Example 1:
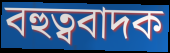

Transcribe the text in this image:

বহুত্ববাদক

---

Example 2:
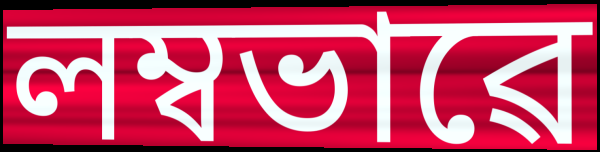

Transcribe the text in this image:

লম্বভাৱে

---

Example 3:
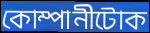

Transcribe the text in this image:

কোম্পানীটোক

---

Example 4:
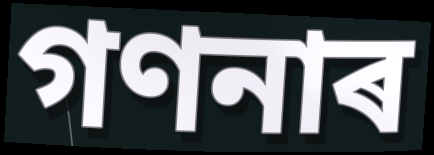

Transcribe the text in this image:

গণনাৰ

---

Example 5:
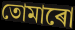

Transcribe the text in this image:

তোমাৰো